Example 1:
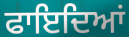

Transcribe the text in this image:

ਫਾਇਦਿਆਂ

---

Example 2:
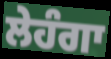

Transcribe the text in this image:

ਲੇਹੰਗਾ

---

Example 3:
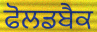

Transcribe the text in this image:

ਫੋਲਡਬੈਕ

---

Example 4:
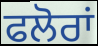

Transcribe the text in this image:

ਫਲੋਰਾਂ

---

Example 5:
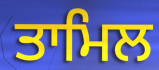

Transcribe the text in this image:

ਤਾਮਿਲ